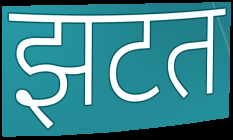
झटत